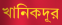
খানিকদূর